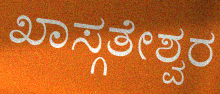
ಖಾಸ್ಗತೇಶ್ವರ